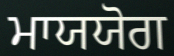
ਮਾਯਯੋਗ